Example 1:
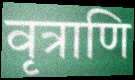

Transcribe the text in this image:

वृत्राणि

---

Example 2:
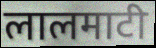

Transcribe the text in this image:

लालमाटी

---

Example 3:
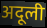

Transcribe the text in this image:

अदूली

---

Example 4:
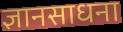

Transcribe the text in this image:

ज्ञानसाधना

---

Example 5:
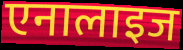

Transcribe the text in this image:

एनालाइज